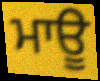
ਮਾਊ